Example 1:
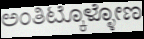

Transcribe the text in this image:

ಅಂತಿಟ್ಕೊಳ್ಳೋಣ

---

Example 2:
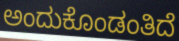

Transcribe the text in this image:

ಅಂದುಕೊಂಡಂತಿದೆ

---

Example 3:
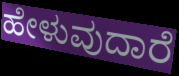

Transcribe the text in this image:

ಹೇಳುವುದಾರೆ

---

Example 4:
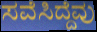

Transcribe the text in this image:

ಸವೆಸಿದ್ದೆವು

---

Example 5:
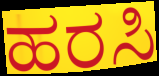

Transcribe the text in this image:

ಹರಸಿ